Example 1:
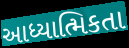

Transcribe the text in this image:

આધ્યાત્મિકતા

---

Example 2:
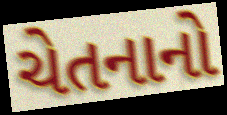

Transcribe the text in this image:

ચેતનાનો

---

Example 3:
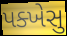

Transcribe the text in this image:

પક્ખેસુ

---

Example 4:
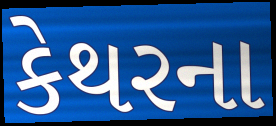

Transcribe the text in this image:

કેથરના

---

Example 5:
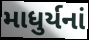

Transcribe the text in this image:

માધુર્યનાં